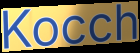
Kocch